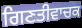
ਗਿਣਤੀਵਾਚਕ